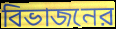
বিভাজনের